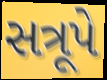
સત્રૂપે